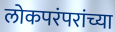
लोकपरंपरांच्या